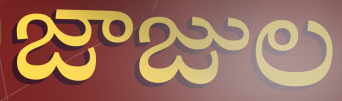
జాజుల